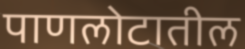
पाणलोटातील